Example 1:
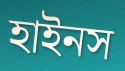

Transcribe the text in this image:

হাইনস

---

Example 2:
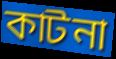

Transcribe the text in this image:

কাটনা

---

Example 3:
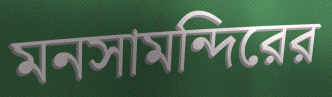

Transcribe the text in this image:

মনসামন্দিরের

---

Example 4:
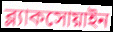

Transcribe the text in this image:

ব্ল্যাকসোয়াইন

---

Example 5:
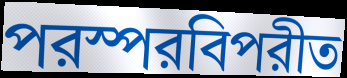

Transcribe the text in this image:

পরস্পরবিপরীত